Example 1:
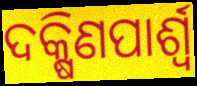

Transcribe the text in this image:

ଦକ୍ଷିଣପାର୍ଶ୍ବ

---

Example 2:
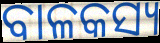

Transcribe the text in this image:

ବାଳକସ୍ୟ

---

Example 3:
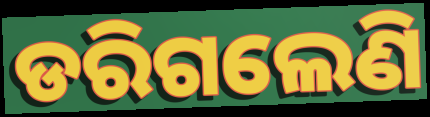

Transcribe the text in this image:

ଡରିଗଲେଣି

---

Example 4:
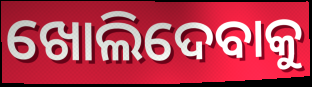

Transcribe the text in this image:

ଖୋଲିଦେବାକୁ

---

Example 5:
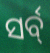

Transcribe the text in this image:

ସର୍ବ୍